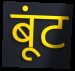
बूंट